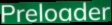
Preloader